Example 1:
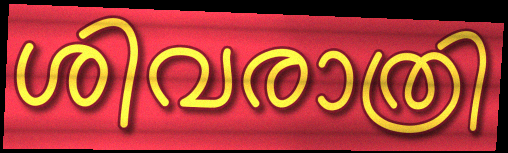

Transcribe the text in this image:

ശിവരാത്രി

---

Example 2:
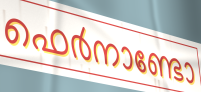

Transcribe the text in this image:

ഫെർനാണ്ടോ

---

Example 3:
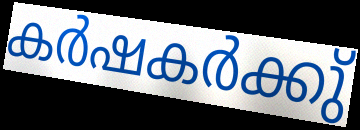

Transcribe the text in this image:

കർഷകർക്കു്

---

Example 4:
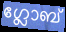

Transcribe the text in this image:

ഗ്ലോബ്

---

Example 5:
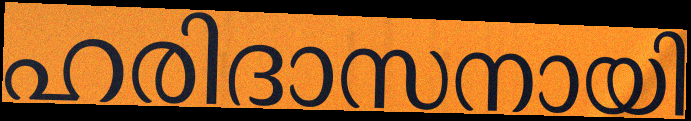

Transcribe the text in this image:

ഹരിദാസനായി